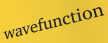
wavefunction